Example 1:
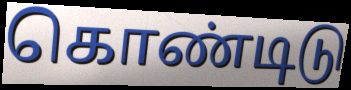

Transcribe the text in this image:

கொண்டிடு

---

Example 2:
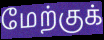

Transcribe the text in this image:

மேற்குக்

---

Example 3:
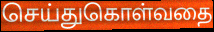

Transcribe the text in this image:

செய்துகொள்வதை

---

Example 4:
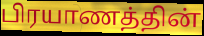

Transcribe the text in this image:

பிரயாணத்தின்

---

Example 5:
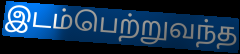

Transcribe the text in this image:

இடம்பெற்றுவந்த